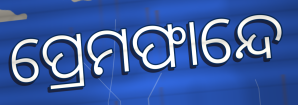
ପ୍ରେମଫାନ୍ଦେ